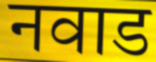
नवाड